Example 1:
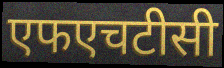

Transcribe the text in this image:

एफएचटीसी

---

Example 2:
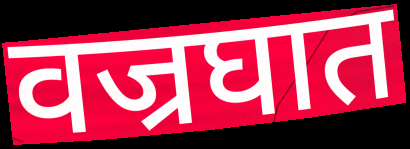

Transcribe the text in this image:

वज्रघात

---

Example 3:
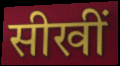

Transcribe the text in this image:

सीखीं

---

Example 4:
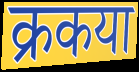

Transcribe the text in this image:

क्रकया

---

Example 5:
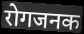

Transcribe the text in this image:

रोगजनक